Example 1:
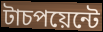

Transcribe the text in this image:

টাচপয়েন্টে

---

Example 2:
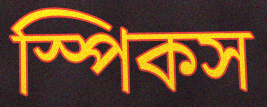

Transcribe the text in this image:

স্পিকস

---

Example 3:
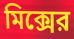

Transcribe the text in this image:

মিক্সের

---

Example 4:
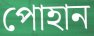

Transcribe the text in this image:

পোহান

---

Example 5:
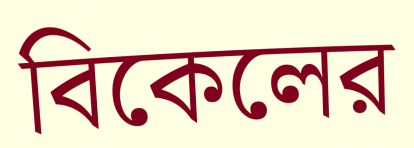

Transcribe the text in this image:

বিকেলের